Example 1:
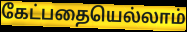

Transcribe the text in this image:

கேட்பதையெல்லாம்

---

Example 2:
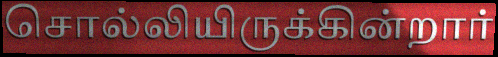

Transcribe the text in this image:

சொல்லியிருக்கின்றார்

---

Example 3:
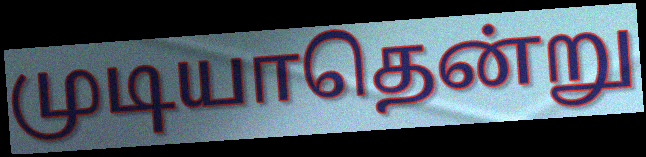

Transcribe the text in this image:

முடியாதென்று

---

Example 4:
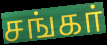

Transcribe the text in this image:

சங்கர்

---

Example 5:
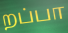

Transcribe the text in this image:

றப்பா